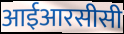
आईआरसीसी